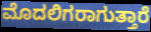
ಮೊದಲಿಗರಾಗುತ್ತಾರೆ